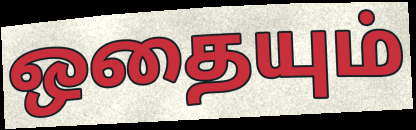
ஒதையும்